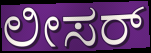
ಲೀಸರ್